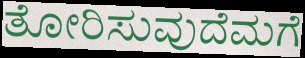
ತೋರಿಸುವುದೆಮಗೆ